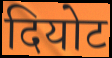
दियोट